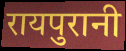
रायपुरानी